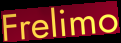
Frelimo